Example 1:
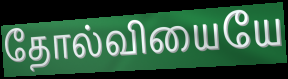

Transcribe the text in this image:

தோல்வியையே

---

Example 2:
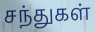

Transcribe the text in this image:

சந்துகள்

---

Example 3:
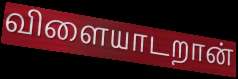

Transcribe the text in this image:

விளையாடறான்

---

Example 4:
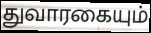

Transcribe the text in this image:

துவாரகையும்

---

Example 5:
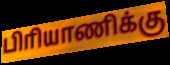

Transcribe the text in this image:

பிரியாணிக்கு